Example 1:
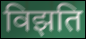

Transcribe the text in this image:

विझति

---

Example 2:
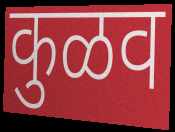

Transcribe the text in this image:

कुळव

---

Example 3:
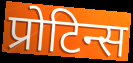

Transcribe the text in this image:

प्रोटिन्स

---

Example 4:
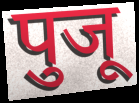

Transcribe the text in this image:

पुजू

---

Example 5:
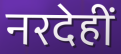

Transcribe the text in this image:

नरदेहीं